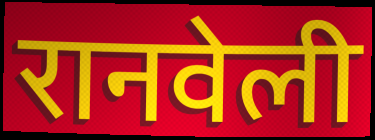
रानवेली